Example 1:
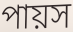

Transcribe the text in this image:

পায়স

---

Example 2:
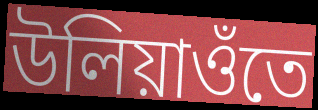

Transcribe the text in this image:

উলিয়াওঁতে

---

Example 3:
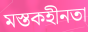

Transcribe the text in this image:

মস্তকহীনতা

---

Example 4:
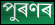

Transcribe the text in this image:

পুৰণৰ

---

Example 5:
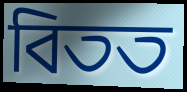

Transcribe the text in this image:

বিতত